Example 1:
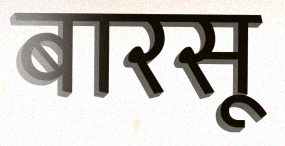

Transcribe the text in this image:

बारसू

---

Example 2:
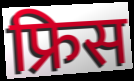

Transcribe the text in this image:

फ्रिस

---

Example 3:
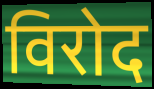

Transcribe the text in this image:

विरोद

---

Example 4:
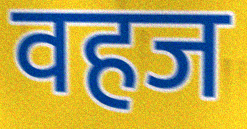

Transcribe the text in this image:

वहज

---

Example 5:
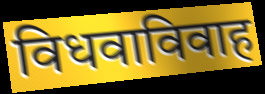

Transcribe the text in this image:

विधवाविवाह